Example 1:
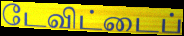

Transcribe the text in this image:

டேவிட்டைப்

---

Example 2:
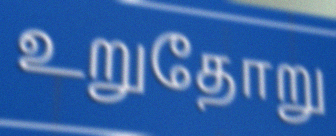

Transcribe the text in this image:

உறுதோறு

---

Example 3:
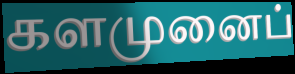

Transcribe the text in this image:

களமுனைப்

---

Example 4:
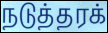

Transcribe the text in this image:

நடுத்தரக்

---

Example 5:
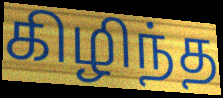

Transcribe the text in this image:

கிழிந்த